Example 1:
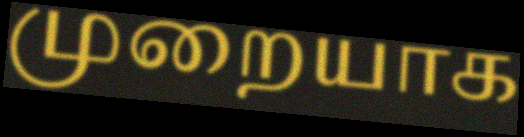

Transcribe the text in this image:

முறையாக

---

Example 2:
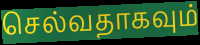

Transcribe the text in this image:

செல்வதாகவும்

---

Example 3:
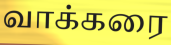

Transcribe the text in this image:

வாக்கரை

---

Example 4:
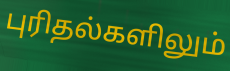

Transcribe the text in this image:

புரிதல்களிலும்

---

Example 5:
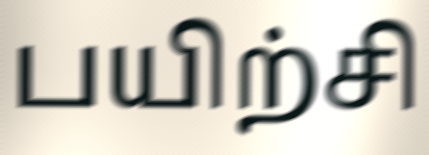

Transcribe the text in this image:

பயிற்சி